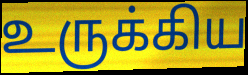
உருக்கிய